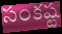
సంకష్ట